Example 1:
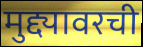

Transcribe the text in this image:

मुद्द्यावरची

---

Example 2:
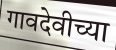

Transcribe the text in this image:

गावदेवीच्या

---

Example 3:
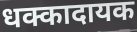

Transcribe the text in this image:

धक्कादायक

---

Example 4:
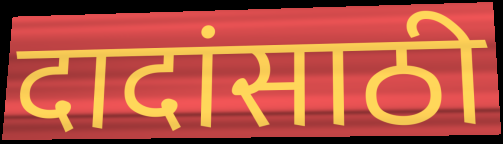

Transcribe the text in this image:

दादांसाठी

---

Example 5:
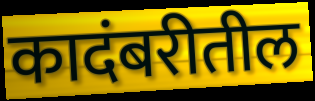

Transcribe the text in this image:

कादंबरीतील